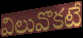
విలువొకటే